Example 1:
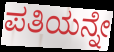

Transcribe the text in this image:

ಪತಿಯನ್ನೇ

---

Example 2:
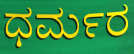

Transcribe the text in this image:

ಧರ್ಮರ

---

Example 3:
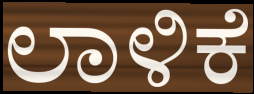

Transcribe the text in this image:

ಲಾಳಿಕೆ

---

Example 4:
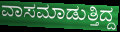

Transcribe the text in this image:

ವಾಸಮಾಡುತ್ತಿದ್ದ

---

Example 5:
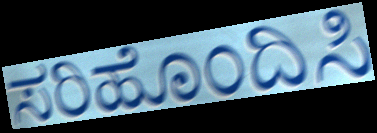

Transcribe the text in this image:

ಸರಿಹೊಂದಿಸಿ